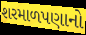
શરમાળપણાનો